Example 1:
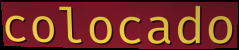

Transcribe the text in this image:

colocado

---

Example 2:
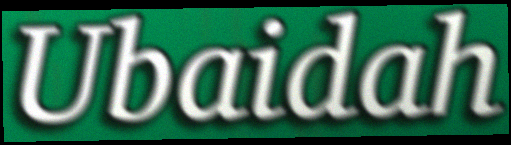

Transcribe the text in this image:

Ubaidah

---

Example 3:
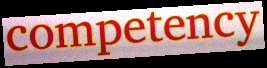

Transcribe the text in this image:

competency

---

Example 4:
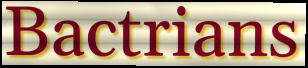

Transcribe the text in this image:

Bactrians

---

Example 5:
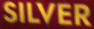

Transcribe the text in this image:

SILVER